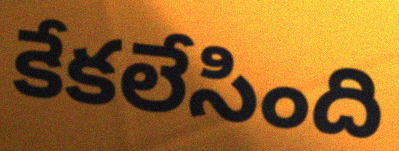
కేకలేసింది